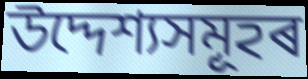
উদ্দেশ্যসমূহৰ